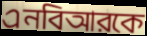
এনবিআরকে